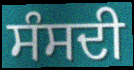
ਸੰਸਦੀ